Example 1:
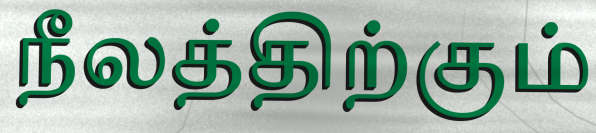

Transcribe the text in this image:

நீலத்திற்கும்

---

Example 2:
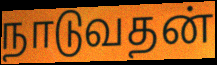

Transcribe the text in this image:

நாடுவதன்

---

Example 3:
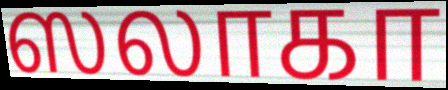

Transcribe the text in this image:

ஸலாகா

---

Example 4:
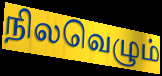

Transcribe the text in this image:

நிலவெழும்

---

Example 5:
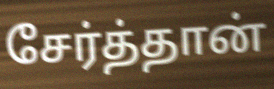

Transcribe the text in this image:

சேர்த்தான்